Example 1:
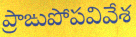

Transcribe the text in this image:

ప్రాఙుపోపవివేశ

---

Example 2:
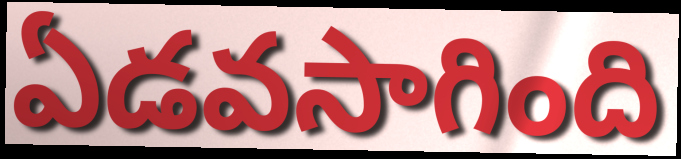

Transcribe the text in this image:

ఏడవసాగింది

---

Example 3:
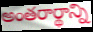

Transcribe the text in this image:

అంతరార్థాన్ని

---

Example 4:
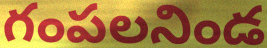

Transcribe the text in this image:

గంపలనిండ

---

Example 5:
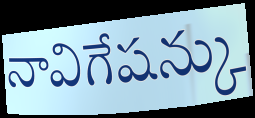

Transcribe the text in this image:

నావిగేషన్కు